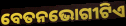
ବେତନଭୋଗୀଟିଏ